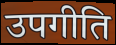
उपगीति